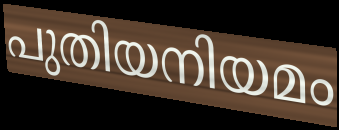
പുതിയനിയമം